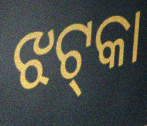
ଝଟ୍‍କା